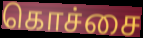
கொச்சை